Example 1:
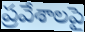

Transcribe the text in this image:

ప్రవేశాలపై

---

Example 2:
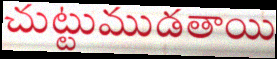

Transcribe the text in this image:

చుట్టుముడతాయి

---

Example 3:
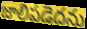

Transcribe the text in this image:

జాలిపడెదను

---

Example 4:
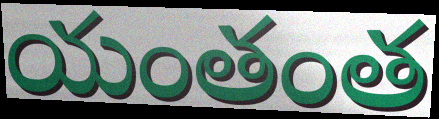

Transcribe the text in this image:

యంతంత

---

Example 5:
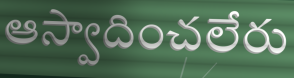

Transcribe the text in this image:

ఆస్వాదించలేరు